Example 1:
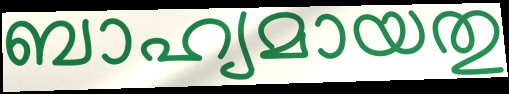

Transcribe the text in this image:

ബാഹ്യമായതു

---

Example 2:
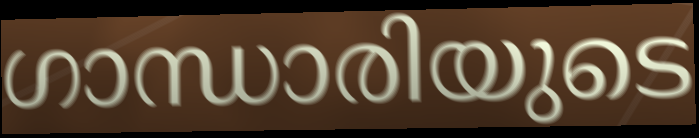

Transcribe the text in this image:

ഗാന്ധാരിയുടെ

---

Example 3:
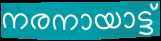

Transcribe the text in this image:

നരനായാട്ട്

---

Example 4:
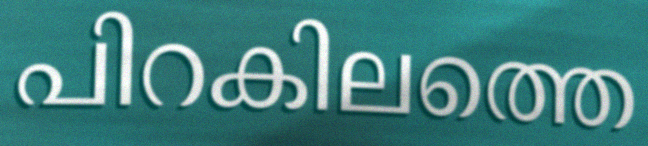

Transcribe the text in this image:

പിറകിലത്തെ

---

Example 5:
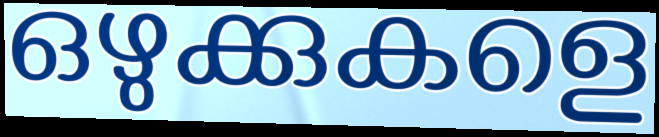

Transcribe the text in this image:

ഒഴുക്കുകളെ